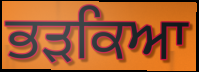
ਭੜਕਿਆ